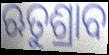
ଋତୁଶ୍ରାବ